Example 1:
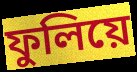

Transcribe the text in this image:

ফুলিয়ে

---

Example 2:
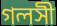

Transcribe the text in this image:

গলসী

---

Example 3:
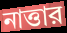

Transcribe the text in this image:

নাত্তার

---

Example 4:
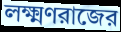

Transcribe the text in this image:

লক্ষ্মণরাজের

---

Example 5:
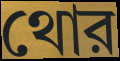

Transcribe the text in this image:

থোর